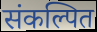
संकल्पित